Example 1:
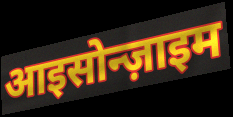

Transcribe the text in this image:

आइसोन्ज़ाइम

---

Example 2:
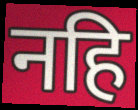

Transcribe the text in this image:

नहि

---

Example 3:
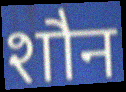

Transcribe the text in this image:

शौन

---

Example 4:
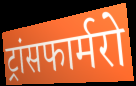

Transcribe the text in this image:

ट्रांसफार्मरो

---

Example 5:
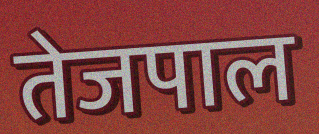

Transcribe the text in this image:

तेजपाल